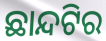
ଛାନ୍ଦଟିର